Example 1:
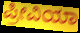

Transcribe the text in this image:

ಪ್ರೀವಿಯಾ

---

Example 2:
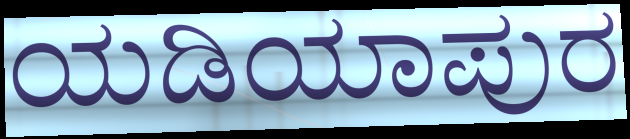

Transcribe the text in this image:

ಯಡಿಯಾಪುರ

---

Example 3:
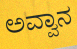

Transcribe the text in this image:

ಅವ್ವಾನ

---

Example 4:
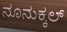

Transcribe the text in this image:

ನೂನುಕ್ಕಲ್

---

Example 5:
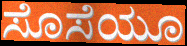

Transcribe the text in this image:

ಸೊಸೆಯೂ